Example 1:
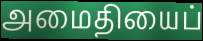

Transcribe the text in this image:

அமைதியைப்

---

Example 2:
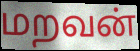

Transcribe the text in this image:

மறவன்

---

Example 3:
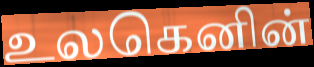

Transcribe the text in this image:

உலகெனின்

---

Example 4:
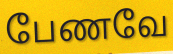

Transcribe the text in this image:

பேணவே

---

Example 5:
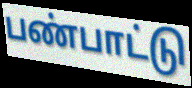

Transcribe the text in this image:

பண்பாட்டு